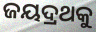
ଜୟଦ୍ରଥକୁ